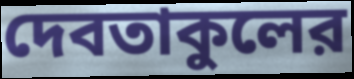
দেবতাকুলের